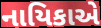
નાયિકાએ